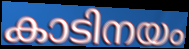
കാടിനയം